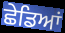
ਛੇਡਿਆਂ